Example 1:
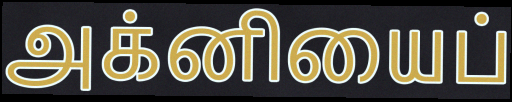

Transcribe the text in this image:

அக்னியைப்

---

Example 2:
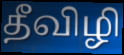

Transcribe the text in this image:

தீவிழி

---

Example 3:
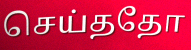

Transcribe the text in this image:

செய்ததோ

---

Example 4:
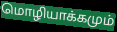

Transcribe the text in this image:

மொழியாக்கமும்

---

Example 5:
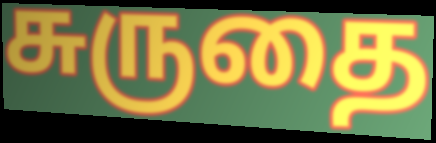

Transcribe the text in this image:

சுருதை